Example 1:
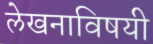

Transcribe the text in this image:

लेखनाविषयी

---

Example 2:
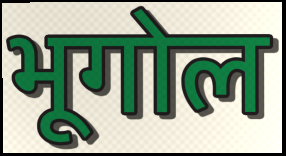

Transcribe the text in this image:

भूगोल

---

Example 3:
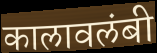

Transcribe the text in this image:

कालावलंबी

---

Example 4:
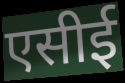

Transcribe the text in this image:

एसीई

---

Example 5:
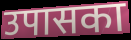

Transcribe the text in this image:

उपासका